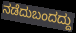
ನಡೆದುಬಂದದ್ದು